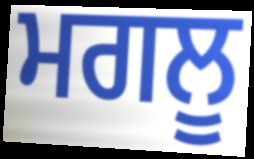
ਮਗਲੂ